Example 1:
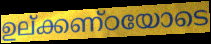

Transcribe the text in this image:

ഉല്ക്കണ്ഠയോടെ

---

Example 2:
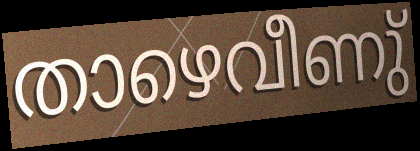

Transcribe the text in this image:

താഴെവീണു്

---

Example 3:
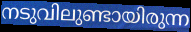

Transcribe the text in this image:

നടുവിലുണ്ടായിരുന്ന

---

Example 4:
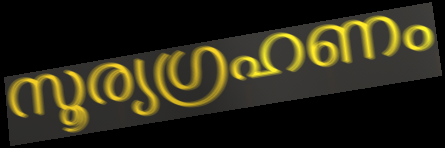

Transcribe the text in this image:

സൂര്യഗ്രഹണം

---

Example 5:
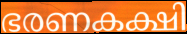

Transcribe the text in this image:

ഭരണകക്ഷി